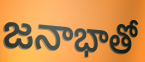
జనాభాతో